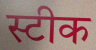
स्टीक